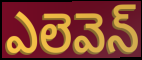
ఎలెవెన్